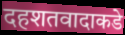
दहशतवादाकडे